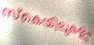
സ്കെയിലുകളും